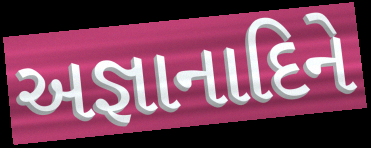
અજ્ઞાનાદિને